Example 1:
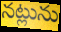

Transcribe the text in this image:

నట్లును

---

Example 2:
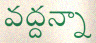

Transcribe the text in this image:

వద్దన్నా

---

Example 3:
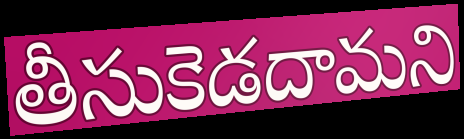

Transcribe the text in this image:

తీసుకెడదామని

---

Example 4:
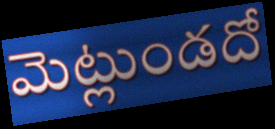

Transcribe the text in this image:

మెట్లుండదో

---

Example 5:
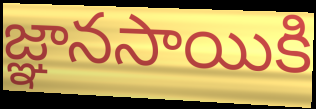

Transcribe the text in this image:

జ్ఞానసాయికి